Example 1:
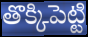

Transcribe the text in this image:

తొక్కిపెట్టి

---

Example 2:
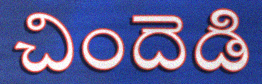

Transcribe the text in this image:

చిందెడి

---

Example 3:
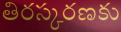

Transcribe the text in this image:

తిరస్కరణకు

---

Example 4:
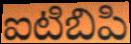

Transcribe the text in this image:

ఐటిబిపి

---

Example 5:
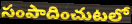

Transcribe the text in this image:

సంపాదించుటలో